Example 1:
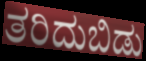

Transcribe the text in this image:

ತರಿದುಬಿಡು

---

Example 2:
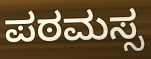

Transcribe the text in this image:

ಪಠಮಸ್ಸ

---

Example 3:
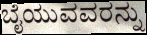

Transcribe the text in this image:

ಬೈಯುವವರನ್ನು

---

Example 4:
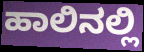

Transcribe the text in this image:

ಹಾಲಿನಲ್ಲಿ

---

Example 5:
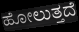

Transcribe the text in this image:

ಹೋಲುತ್ತದೆ